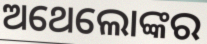
ଅଥେଲୋଙ୍କର